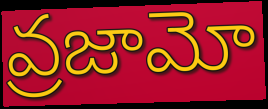
వ్రజామో